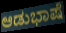
ಆಡುಭಾಷೆ